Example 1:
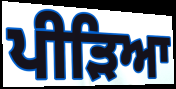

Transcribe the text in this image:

ਪੀੜਿਆ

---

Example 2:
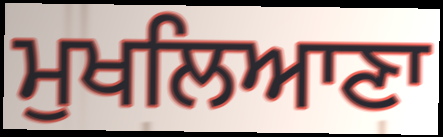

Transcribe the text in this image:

ਮੁਖਲਿਆਣਾ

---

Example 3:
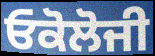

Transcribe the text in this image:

ਓਕੋਲੋਜੀ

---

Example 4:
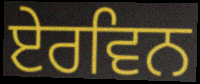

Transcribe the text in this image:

ਏਰਵਿਨ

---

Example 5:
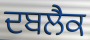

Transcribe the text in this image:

ਦਬਲੈਕ